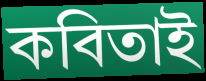
কবিতাই